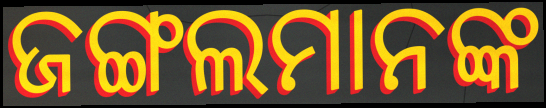
ଜଙ୍ଗଲମାନଙ୍କ